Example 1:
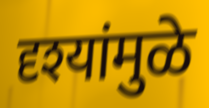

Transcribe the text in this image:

दृश्यांमुळे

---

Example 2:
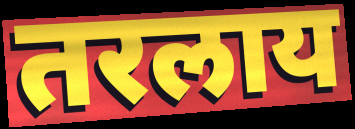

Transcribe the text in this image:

तरलाय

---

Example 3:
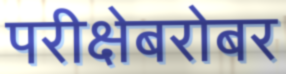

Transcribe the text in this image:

परीक्षेबरोबर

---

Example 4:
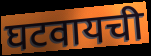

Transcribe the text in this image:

घटवायची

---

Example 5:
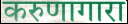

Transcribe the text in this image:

करुणागारा